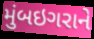
મુંબઇગરાને